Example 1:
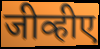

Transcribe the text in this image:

जीव्हीए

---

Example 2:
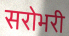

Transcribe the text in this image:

सरोभरी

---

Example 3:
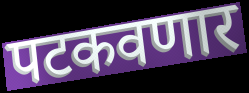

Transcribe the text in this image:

पटकवणार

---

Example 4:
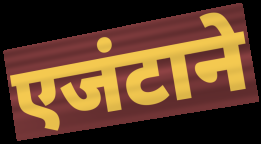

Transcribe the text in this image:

एजंटाने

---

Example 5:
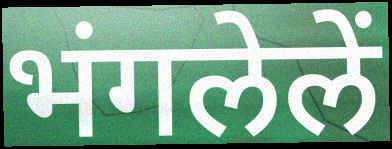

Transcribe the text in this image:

भंगलेलें